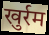
खुर्रम